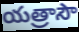
యత్రాసౌ